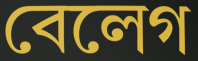
বেলেগ